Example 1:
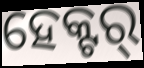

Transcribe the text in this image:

ହେକ୍ଟର୍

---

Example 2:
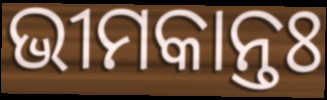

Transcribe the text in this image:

ଭୀମକାନ୍ତଃ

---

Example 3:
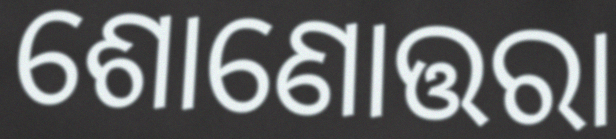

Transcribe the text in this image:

ଶୋଣୋତ୍ତରା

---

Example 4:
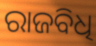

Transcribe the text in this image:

ରାଜବିଧି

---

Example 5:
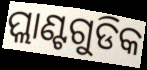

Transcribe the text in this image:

ପ୍ଲାଣ୍ଟଗୁଡିକ